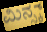
ಮಿನ್ಸ್ಕ್